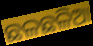
ଛଳଛଳିଆ